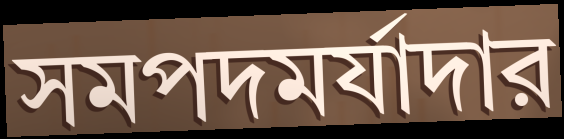
সমপদমর্যাদার